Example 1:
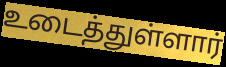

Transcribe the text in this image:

உடைத்துள்ளார்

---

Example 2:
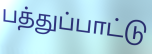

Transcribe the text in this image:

பத்துப்பாட்டு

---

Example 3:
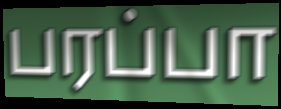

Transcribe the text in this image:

பரப்பா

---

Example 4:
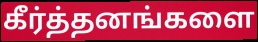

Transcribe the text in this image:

கீர்த்தனங்களை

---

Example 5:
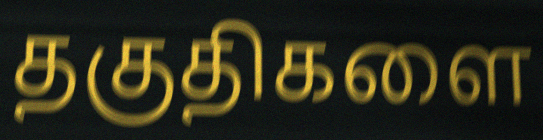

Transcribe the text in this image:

தகுதிகளை